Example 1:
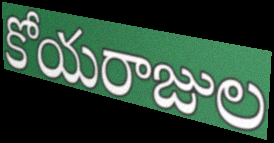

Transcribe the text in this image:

కోయరాజుల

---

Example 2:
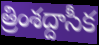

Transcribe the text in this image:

త్రింశద్దాసీక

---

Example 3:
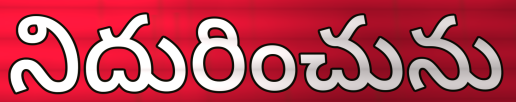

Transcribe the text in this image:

నిదురించును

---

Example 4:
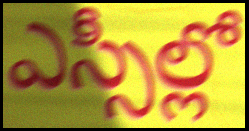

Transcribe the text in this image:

ఎస్సీల్లో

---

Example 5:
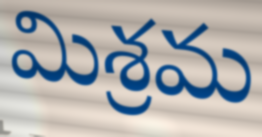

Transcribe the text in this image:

మిశ్రమ